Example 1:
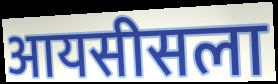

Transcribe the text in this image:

आयसीसला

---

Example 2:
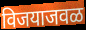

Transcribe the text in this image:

विजयाजवळ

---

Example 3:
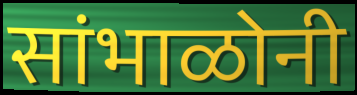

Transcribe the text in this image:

सांभाळोनी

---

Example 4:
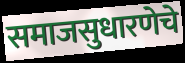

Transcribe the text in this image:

समाजसुधारणेचे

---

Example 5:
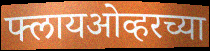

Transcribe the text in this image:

फ्लायओव्हरच्या